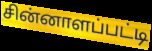
சின்னாளப்பட்டி